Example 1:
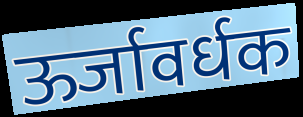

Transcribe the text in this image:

ऊर्जावर्धक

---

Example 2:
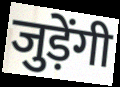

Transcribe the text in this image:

जुड़ेंगी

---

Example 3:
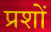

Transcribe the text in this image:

प्रशों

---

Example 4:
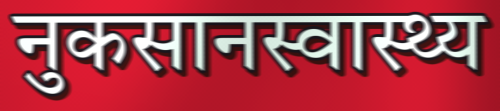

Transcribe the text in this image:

नुकसानस्वास्थ्य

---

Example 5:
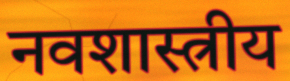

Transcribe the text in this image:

नवशास्त्रीय